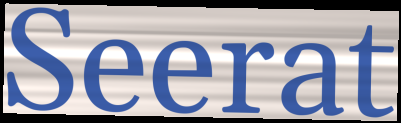
Seerat